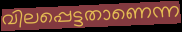
വിലപ്പെട്ടതാണെന്ന